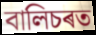
বালিচৰত